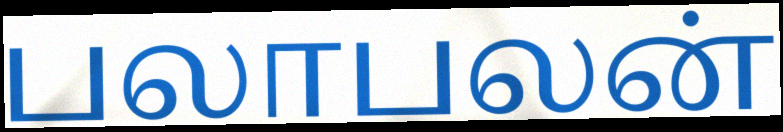
பலாபலன்